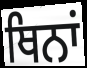
ਥਿਨਾਂ